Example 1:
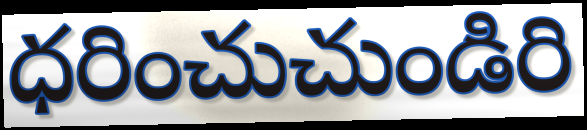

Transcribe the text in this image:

ధరించుచుండిరి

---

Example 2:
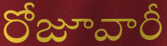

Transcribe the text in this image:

రోజూవారీ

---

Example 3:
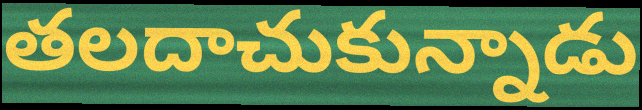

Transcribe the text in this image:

తలదాచుకున్నాడు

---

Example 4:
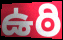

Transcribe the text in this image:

ఉఠి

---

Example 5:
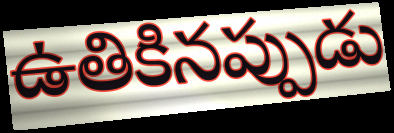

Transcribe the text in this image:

ఉతికినప్పుడు